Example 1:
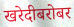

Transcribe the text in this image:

खरेदीबरोबर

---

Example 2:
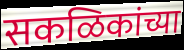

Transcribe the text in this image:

सकळिकांच्या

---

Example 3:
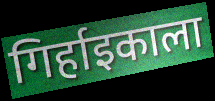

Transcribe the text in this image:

गिर्हाइकाला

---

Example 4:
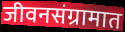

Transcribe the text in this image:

जीवनसंग्रामात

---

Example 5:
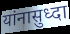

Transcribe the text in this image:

यांनासुध्दा